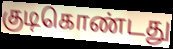
குடிகொண்டது